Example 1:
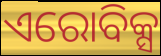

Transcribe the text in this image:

ଏରୋବିକ୍ସ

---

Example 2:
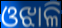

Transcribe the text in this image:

ଓଝାଳି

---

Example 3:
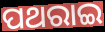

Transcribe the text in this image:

ପଥରାଇ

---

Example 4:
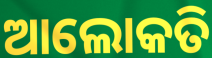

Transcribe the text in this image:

ଆଲୋକତି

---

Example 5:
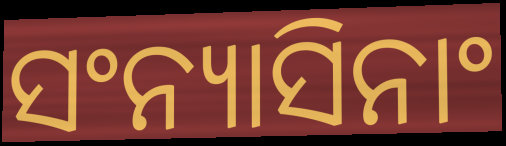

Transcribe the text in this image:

ସଂନ୍ୟାସିନାଂ